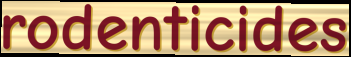
rodenticides